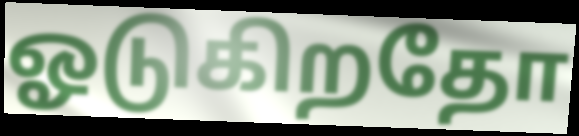
ஓடுகிறதோ